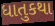
ધાતુકથા